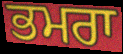
ਭਮਰਾ